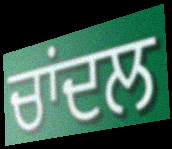
ਚਾਂਦਲ